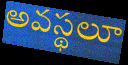
అవస్థలూ